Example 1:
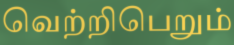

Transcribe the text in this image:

வெற்றிபெறும்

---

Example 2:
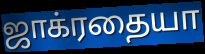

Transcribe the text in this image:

ஜாக்ரதையா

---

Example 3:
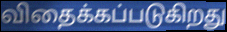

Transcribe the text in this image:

விதைக்கப்படுகிறது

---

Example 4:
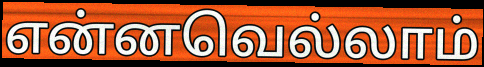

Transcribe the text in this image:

என்னவெல்லாம்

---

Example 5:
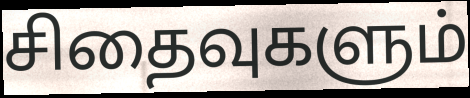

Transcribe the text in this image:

சிதைவுகளும்